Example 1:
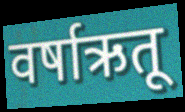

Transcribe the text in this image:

वर्षाऋतू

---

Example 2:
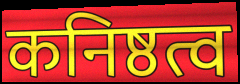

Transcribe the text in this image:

कनिष्ठत्व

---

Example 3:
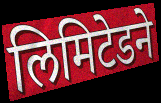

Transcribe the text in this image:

लिमिटेडने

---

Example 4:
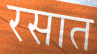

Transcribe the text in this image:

रसात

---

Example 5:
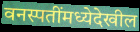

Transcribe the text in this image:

वनस्पतींमध्येदेखील